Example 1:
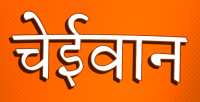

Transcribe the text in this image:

चेईवान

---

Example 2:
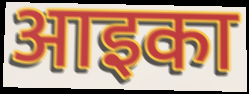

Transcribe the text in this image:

आइका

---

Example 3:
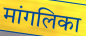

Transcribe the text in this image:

मांगलिका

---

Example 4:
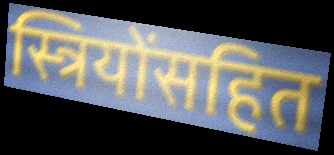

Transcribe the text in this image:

स्त्रियोंसहित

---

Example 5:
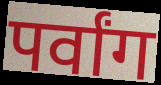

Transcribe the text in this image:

पर्वांग